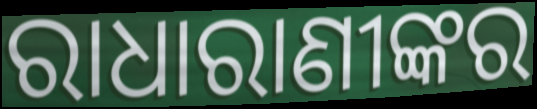
ରାଧାରାଣୀଙ୍କର